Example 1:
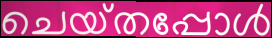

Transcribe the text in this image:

ചെയ്‌തപ്പോൾ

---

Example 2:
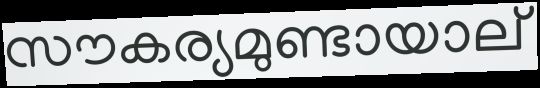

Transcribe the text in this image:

സൗകര്യമുണ്ടായാല്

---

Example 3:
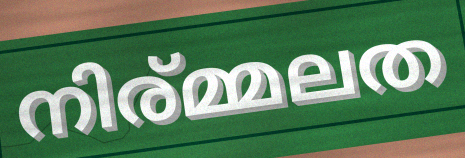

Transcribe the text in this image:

നിര്മ്മലത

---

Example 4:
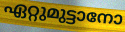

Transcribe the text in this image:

ഏറ്റുമുട്ടാനോ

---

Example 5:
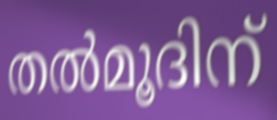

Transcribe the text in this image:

തൽമൂദിന്